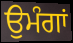
ਉਮੰਗਾਂ